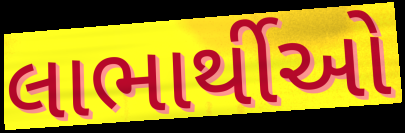
લાભાર્થીઓ